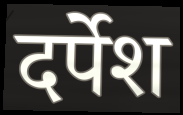
दर्पेश